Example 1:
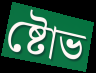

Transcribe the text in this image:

ষ্টোভ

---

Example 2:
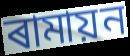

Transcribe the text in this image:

ৰামায়ন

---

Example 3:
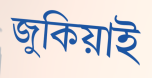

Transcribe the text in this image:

জুকিয়াই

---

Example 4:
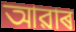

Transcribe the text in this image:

আৱাৰ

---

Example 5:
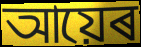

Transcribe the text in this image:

আয়েৰ